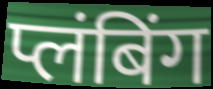
प्लंबिंग